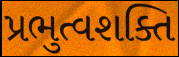
પ્રભુત્વશક્તિ